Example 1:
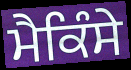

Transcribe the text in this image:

ਮੈਕਿੰਸੇ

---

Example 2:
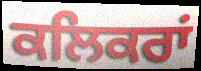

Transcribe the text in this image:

ਕਲਿਕਰਾਂ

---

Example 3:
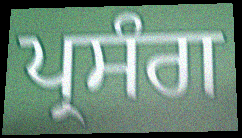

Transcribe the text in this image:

ਪ੍ਰਸੰਗ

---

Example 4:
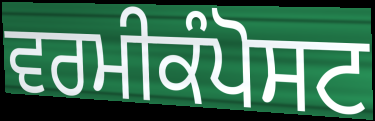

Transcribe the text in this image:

ਵਰਮੀਕੰਪੋਸਟ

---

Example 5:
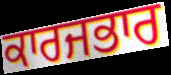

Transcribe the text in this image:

ਕਾਰਜਭਾਰ